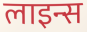
लाइन्स